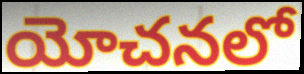
యోచనలో